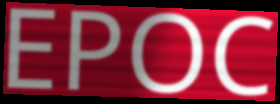
EPOC